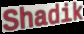
Shadik